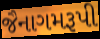
જૈનાગમરૂપી